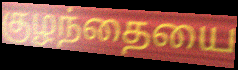
குழந்தையை